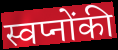
स्वप्नोंकी